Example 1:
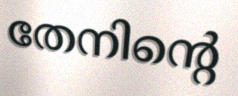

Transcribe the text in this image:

തേനിന്റെ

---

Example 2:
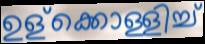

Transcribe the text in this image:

ഉള്ക്കൊള്ളിച്ച്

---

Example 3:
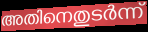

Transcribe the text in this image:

അതിനെതുടർന്ന്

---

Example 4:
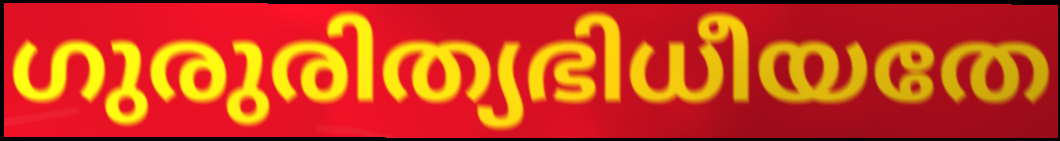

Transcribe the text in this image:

ഗുരുരിത്യഭിധീയതേ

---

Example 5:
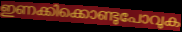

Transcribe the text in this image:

ഇണക്കിക്കൊണ്ടുപോവുക